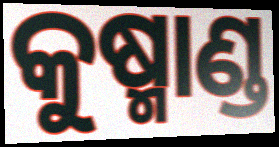
କୁଷ୍ମାଣ୍ଡ